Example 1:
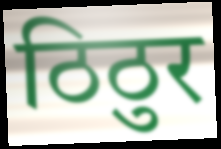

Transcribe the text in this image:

ठिठुर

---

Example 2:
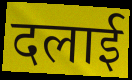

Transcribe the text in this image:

दलाई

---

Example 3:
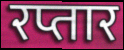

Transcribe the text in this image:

रप्तार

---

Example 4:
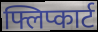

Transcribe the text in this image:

फ्लिप्कार्ट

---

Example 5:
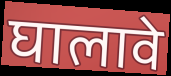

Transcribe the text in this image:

घालावे